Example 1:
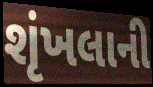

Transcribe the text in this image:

શૃંખલાની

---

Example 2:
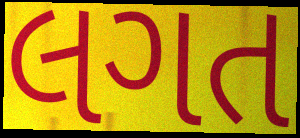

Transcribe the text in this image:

લગત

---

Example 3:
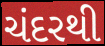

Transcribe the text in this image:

ચંદરથી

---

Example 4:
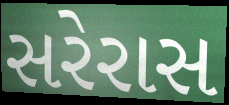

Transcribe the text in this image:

સરેરાસ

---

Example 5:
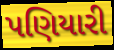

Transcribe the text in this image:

પણિયારી